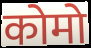
कोमो